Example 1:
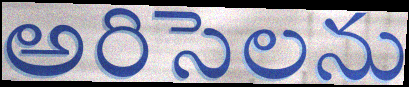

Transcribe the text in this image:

అరిసెలను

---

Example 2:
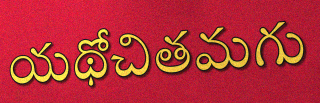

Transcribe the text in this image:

యథోచితమగు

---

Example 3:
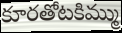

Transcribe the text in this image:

కూరతోటకిమ్ము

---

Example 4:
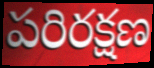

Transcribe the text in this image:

పరిరక్షణ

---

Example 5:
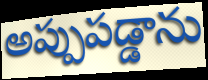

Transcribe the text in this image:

అప్పుపడ్డాను